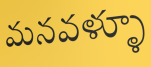
మనవళ్ళూ